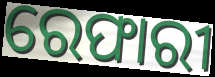
ରେଫାରୀ